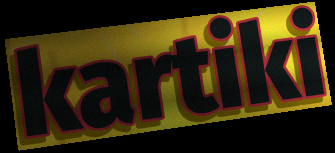
kartiki